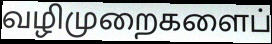
வழிமுறைகளைப்